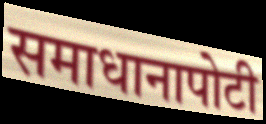
समाधानापोटी